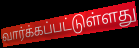
வார்க்கப்பட்டுள்ளது